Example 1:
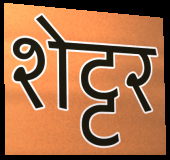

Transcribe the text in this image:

शेट्टर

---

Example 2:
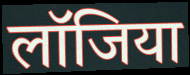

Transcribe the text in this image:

लॉजिया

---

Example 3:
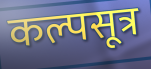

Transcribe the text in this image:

कल्पसूत्र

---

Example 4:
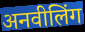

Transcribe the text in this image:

अनवीलिंग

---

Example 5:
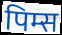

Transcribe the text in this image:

पिम्स